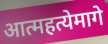
आत्महत्येमागे